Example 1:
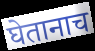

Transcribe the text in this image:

घेतानाच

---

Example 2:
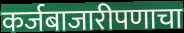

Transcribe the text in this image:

कर्जबाजारीपणाचा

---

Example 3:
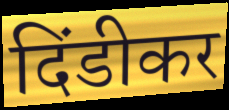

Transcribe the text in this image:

दिंडीकर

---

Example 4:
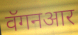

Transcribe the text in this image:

वॅगनआर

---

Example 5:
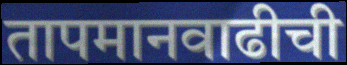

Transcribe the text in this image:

तापमानवाढीची